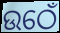
ଉଠେଁ